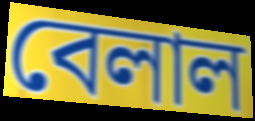
বেলাল